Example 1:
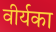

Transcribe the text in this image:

वीर्यका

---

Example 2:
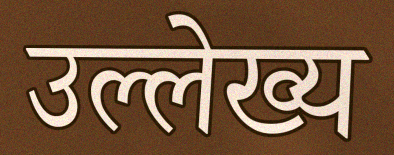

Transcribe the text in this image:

उल्लेख्य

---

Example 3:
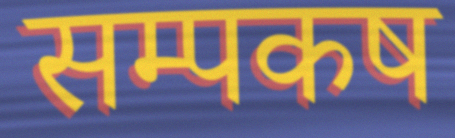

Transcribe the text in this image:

सम्पकष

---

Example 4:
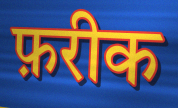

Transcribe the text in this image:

फ़रीक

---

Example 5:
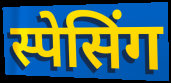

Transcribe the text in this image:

स्पेसिंग